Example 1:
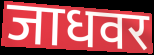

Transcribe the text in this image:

जाधवर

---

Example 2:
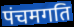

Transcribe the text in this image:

पंचमगति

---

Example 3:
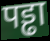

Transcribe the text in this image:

पड्ढा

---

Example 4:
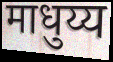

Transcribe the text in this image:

माधुय्य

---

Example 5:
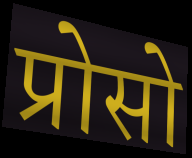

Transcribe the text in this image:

प्रोसो